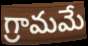
గ్రామమే